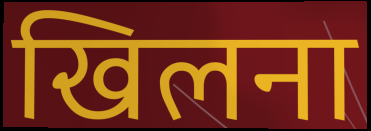
खिलना